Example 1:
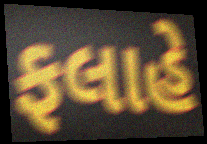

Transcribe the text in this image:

ફલાહે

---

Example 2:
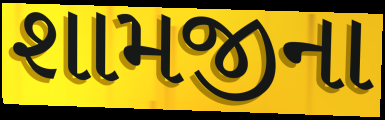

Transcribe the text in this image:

શામજીના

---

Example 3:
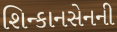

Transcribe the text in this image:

શિન્કાનસેનની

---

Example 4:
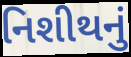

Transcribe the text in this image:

નિશીથનું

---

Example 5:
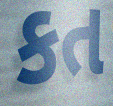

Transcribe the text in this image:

કત